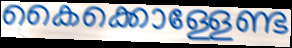
കൈക്കൊള്ളേണ്ട